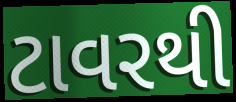
ટાવરથી